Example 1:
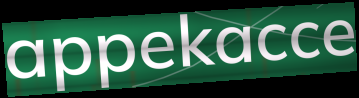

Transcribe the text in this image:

appekacce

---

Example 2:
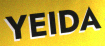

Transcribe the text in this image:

YEIDA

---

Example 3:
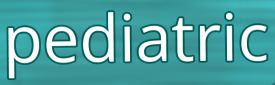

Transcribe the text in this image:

pediatric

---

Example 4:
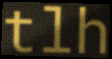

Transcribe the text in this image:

tlh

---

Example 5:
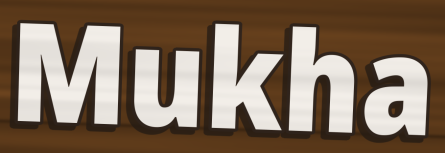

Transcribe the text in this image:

Mukha